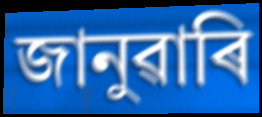
জানুৱাৰি